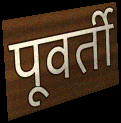
पूवर्ती